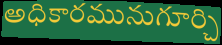
అధికారమునుగూర్చి